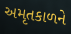
અમૃતકાળને